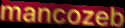
mancozeb